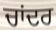
ਚਾਂਦਰ